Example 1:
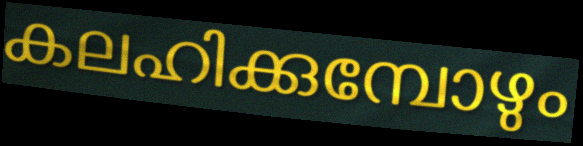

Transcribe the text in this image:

കലഹിക്കുമ്പോഴും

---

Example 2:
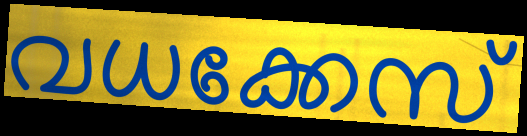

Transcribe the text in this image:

വധക്കേസ്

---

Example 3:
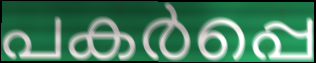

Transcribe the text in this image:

പകർപ്പെ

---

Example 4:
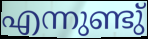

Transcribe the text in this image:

എന്നുണ്ടു്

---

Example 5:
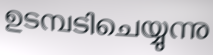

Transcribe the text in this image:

ഉടമ്പടിചെയ്യുന്നു